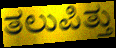
ತಲುಪಿತ್ತು